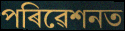
পৰিৱেশনত